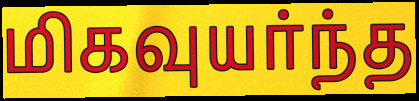
மிகவுயர்ந்த